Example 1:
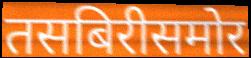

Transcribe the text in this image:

तसबिरीसमोर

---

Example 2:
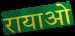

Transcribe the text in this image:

रायाओ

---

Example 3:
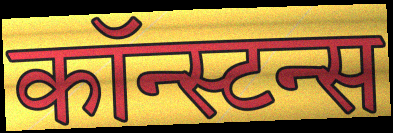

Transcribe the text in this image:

कॉन्स्टन्स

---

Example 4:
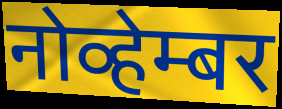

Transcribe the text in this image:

नोव्हेम्बर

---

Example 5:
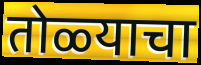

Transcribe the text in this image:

तोळ्याचा